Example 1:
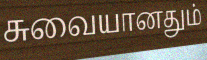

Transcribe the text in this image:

சுவையானதும்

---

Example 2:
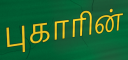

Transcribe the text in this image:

புகாரின்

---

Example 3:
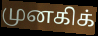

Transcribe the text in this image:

முனகிக்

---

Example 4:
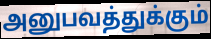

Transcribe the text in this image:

அனுபவத்துக்கும்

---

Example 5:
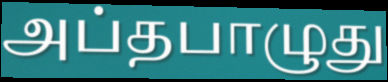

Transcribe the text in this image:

அப்தபாழுது